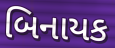
બિનાયક